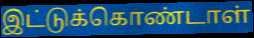
இட்டுக்கொண்டாள்